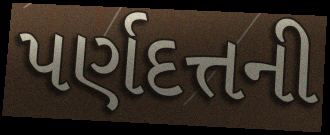
પર્ણદત્તની